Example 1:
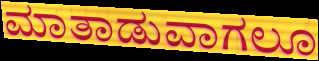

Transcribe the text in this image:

ಮಾತಾಡುವಾಗಲೂ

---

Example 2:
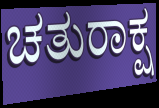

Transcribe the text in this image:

ಚತುರಾಕ್ಷ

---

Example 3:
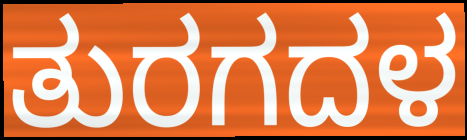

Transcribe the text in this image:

ತುರಗದಳ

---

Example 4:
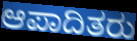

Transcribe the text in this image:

ಆಪಾದಿತರು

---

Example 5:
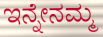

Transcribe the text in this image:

ಇನ್ನೇನಮ್ಮ